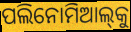
ପଲିନୋମିଆଲ୍‌କୁ